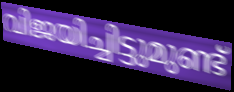
വിജയിച്ചിട്ടുമുണ്ട്